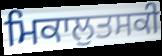
ਮਿਕਾਲੁਤਸਕੀ